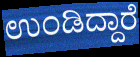
ಉಂಡಿದ್ದಾರೆ